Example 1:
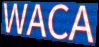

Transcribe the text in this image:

WACA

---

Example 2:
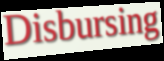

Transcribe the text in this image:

Disbursing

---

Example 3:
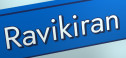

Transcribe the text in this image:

Ravikiran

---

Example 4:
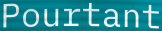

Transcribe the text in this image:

Pourtant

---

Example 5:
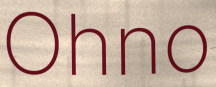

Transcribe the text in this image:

Ohno